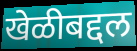
खेळीबद्दल